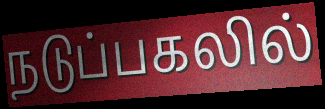
நடுப்பகலில்